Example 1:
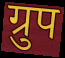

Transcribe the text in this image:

ग्रुप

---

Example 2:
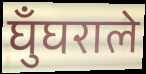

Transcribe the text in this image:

घुँघराले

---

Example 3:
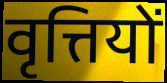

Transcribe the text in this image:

वृत्तियों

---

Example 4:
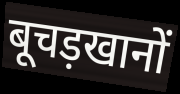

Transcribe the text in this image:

बूचड़खानों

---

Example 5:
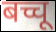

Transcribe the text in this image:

बच्चू